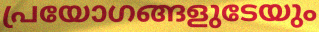
പ്രയോഗങ്ങളുടേയും